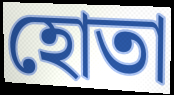
হোতা